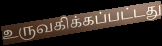
உருவகிக்கப்பட்டது